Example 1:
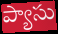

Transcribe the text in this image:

ప్యాసు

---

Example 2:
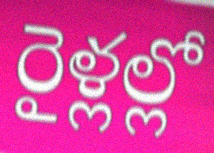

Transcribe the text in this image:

రైళ్లల్లో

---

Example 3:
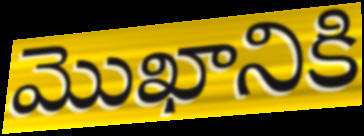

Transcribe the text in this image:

మొఖానికి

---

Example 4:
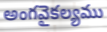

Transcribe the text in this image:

అంగవైకల్యము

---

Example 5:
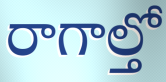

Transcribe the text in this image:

రాగాల్తో